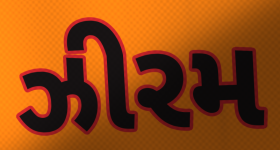
ઝીરમ